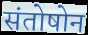
संतोषोन